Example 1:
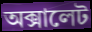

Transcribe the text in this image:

অক্সালেট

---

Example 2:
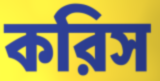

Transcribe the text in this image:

করিস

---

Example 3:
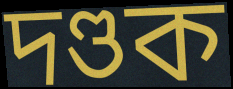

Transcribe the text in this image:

দণ্ডক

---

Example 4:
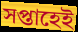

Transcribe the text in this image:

সপ্তাহেই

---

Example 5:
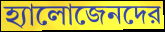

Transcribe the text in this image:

হ্যালোজেনদের